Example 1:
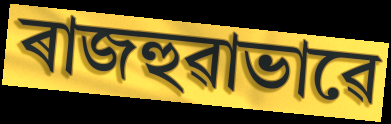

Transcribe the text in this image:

ৰাজহুৱাভাৱে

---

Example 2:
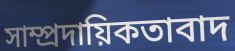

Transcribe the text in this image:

সাম্প্ৰদায়িকতাবাদ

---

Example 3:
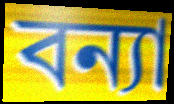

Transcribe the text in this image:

বন্যা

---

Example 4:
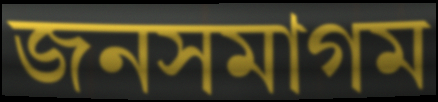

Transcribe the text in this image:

জনসমাগম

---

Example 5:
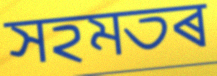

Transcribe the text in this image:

সহমতৰ